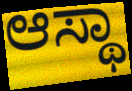
ಆಸ್ಥಾ